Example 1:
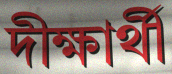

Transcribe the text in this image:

দীক্ষার্থী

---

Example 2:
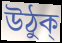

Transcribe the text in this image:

উঠুক্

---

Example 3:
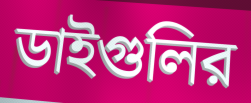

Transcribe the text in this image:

ডাইগুলির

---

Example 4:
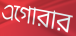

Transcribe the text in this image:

এগোরার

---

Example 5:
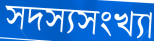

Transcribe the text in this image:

সদস্যসংখ্যা